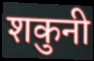
शकुनी